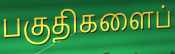
பகுதிகளைப்